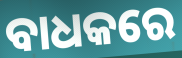
ବାଧକରେ